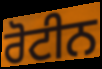
ਰੋਟੀਨ